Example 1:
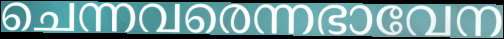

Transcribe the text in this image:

ചെന്നവരെന്നഭാവേന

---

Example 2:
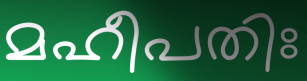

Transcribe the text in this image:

മഹീപതിഃ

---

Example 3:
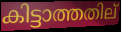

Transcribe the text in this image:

കിട്ടാത്തതില്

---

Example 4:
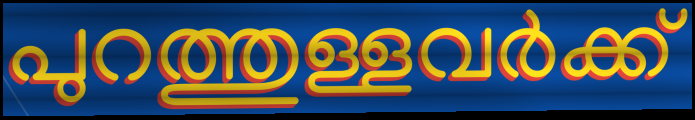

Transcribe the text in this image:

പുറത്തുള്ളവർക്ക്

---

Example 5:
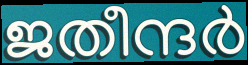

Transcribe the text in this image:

ജതീന്ദർ